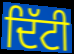
ਦਿੱਟੀ